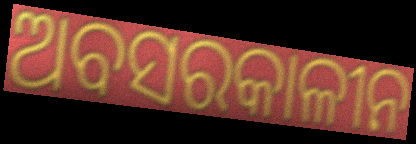
ଅବସରକାଳୀନ